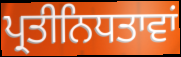
ਪ੍ਰਤੀਨਿਧਤਾਵਾਂ